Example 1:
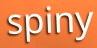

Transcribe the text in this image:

spiny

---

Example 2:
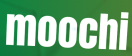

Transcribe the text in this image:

moochi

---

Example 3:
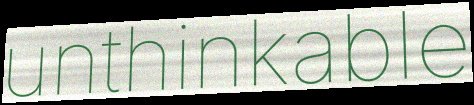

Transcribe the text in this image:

unthinkable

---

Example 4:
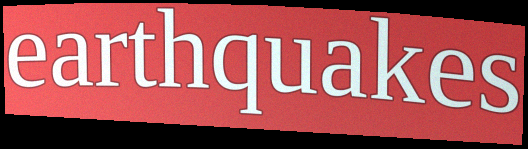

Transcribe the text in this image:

earthquakes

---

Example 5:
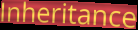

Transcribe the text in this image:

Inheritance